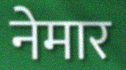
नेमार